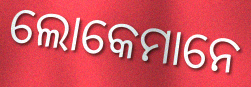
ଲୋକେମାନେ